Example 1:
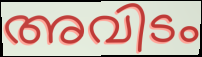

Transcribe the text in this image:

അവിടം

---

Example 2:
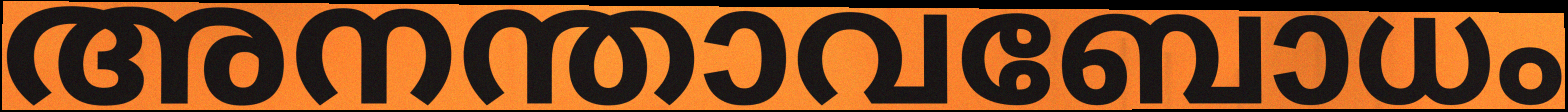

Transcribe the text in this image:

അനന്താവബോധം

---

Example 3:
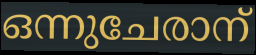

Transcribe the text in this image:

ഒന്നുചേരാന്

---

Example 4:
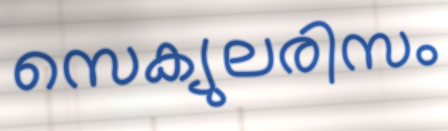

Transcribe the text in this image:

സെക്യുലരിസം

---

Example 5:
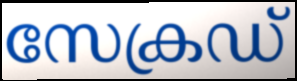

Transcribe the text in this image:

സേക്രഡ്